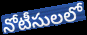
నోటీసులలో